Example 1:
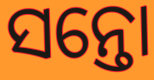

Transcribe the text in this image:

ସନ୍ତୋ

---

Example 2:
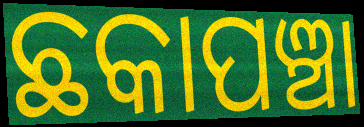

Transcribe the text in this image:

ଛକାପଞ୍ଚା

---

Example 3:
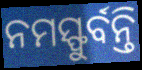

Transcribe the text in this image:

ନମସ୍ଫୁର୍ବନ୍ତି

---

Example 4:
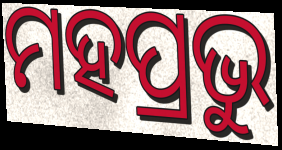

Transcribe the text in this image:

ମହପ୍ରଭୁ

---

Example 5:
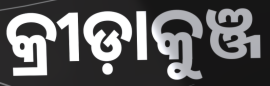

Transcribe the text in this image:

କ୍ରୀଡ଼ାକୁଞ୍ଜ